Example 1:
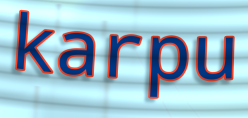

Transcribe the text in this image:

karpu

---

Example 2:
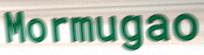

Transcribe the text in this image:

Mormugao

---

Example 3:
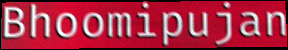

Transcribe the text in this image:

Bhoomipujan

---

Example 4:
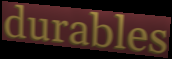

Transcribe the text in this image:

durables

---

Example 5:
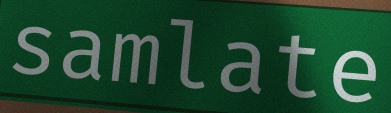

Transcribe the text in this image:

samlate